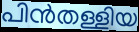
പിൻതള്ളിയ